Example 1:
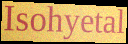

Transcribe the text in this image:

Isohyetal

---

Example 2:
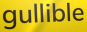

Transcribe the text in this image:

gullible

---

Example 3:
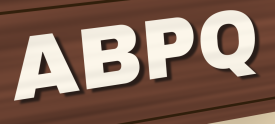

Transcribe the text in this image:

ABPQ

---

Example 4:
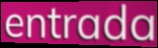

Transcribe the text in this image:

entrada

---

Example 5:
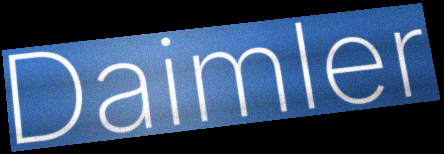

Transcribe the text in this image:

Daimler